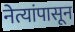
नेत्यांपासून